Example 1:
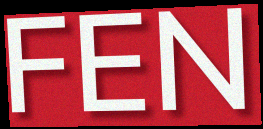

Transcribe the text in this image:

FEN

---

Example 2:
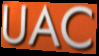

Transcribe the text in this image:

UAC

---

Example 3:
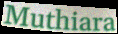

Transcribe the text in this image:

Muthiara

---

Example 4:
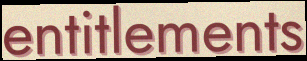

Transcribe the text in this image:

entitlements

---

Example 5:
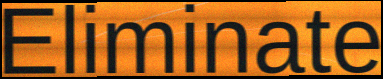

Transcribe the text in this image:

Eliminate